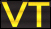
VT